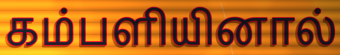
கம்பளியினால்